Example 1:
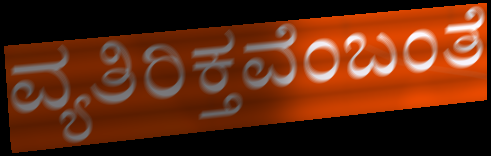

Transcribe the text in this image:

ವ್ಯತಿರಿಕ್ತವೆಂಬಂತೆ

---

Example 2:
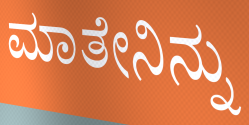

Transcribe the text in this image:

ಮಾತೇನಿನ್ನು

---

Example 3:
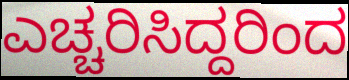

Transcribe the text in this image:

ಎಚ್ಚರಿಸಿದ್ದರಿಂದ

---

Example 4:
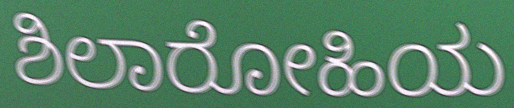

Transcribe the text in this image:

ಶಿಲಾರೋಹಿಯ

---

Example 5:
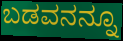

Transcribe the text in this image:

ಬಡವನನ್ನೂ